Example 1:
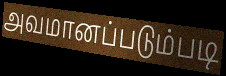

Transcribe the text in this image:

அவமானப்படும்படி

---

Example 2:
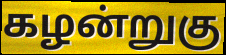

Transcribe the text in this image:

கழன்றுகு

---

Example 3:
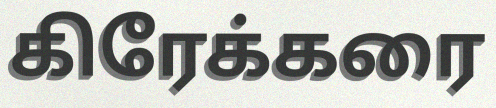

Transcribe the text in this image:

கிரேக்கரை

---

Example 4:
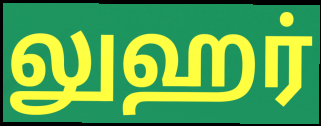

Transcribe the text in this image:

லுஹர்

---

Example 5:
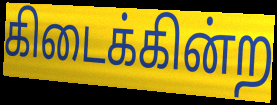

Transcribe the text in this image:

கிடைக்கின்ற